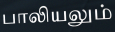
பாலியலும்